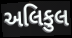
અલિકુલ